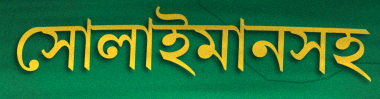
সোলাইমানসহ